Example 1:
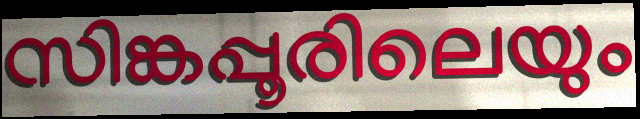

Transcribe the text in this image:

സിങ്കപ്പൂരിലെയും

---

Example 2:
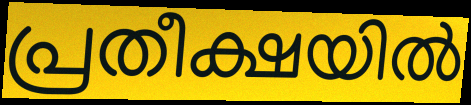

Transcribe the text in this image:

പ്രതീക്ഷയിൽ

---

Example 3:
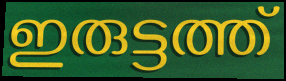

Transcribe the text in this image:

ഇരുട്ടത്ത്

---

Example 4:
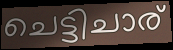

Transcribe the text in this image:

ചെട്ടിചാര്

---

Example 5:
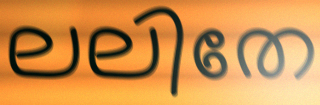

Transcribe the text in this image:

ലലിതേ